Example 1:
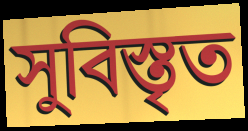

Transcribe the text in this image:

সুবিস্তৃত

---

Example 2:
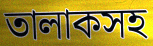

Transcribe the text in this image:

তালাকসহ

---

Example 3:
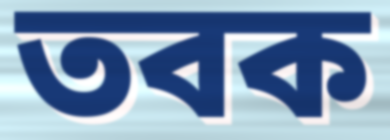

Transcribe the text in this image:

তবক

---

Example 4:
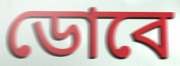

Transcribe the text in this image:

ডোবে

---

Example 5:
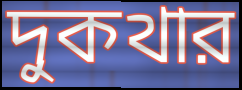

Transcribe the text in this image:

দুকথার